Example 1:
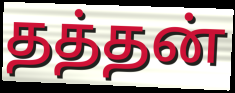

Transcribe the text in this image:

தத்தன்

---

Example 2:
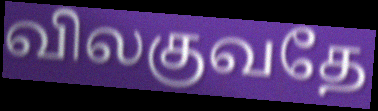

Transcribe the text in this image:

விலகுவதே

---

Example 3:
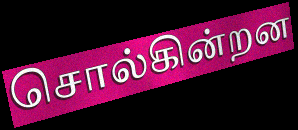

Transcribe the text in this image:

சொல்கின்றன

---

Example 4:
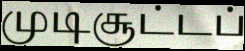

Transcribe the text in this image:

முடிசூட்டப்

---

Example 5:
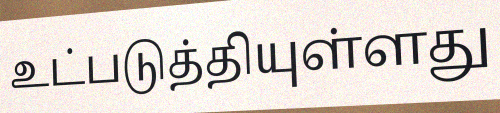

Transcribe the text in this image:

உட்படுத்தியுள்ளது